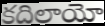
కదిలాయో